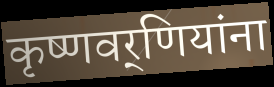
कृष्णवर्णियांना